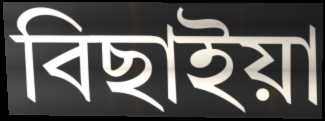
বিছাইয়া